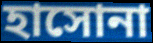
হাসোনা